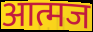
आत्मज